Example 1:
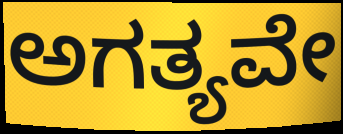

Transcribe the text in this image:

ಅಗತ್ಯವೇ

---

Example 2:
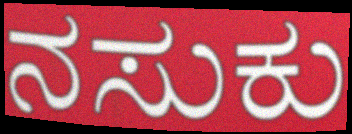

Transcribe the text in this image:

ನಸುಕು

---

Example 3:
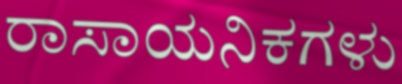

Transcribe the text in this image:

ರಾಸಾಯನಿಕಗಳು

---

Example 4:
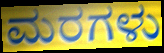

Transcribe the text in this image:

ಮರಗಳು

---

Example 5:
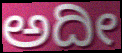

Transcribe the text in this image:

ಅದೀ